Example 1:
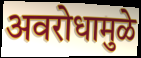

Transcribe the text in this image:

अवरोधामुळे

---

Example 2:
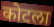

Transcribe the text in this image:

कोटला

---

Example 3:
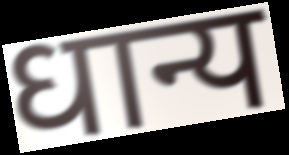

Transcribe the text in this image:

धान्य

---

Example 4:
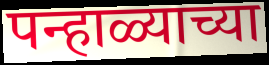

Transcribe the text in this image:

पन्हाळ्याच्या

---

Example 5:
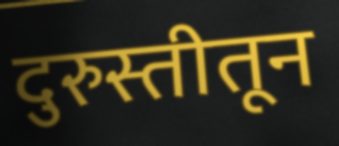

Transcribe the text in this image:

दुरुस्तीतून